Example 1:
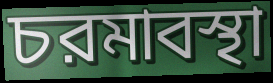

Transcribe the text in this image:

চরমাবস্থা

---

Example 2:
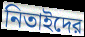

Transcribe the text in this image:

নিতাইদের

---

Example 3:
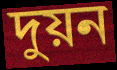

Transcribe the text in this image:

দুয়ন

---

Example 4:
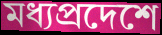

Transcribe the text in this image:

মধ্যপ্রদেশে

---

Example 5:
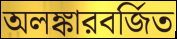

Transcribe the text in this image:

অলঙ্কারবর্জিত